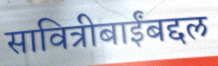
सावित्रीबाईंबद्दल